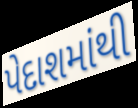
પેદાશમાંથી